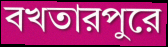
বখতারপুরে